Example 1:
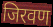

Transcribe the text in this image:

जिरवण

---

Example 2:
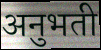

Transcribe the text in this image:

अनुभती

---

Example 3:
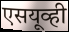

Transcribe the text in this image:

एसयूव्ही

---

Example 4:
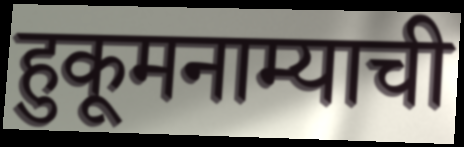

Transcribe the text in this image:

हुकूमनाम्याची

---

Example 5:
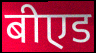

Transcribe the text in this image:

बीएड